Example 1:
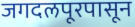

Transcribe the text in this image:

जगदलपूरपासून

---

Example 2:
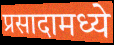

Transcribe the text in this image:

प्रसादामध्ये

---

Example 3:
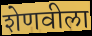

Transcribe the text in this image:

शेणवीला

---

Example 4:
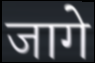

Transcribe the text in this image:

जागे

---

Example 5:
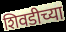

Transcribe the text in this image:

शिवडीच्या